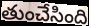
తుంచేసింది